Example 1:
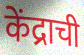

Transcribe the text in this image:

केंद्राची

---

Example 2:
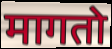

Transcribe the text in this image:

मागतो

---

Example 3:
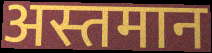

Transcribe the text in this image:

अस्तमान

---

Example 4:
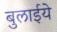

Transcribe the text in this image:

बुलाईये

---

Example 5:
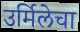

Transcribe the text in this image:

उर्मिलेचा